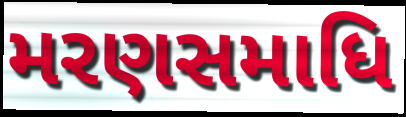
મરણસમાધિ